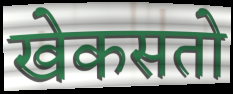
खेकसतो